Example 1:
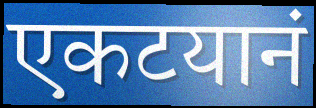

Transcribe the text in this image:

एकटयानं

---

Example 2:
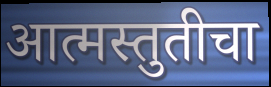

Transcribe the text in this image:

आत्मस्तुतीचा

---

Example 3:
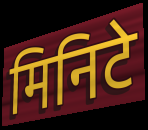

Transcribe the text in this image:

मिनिटे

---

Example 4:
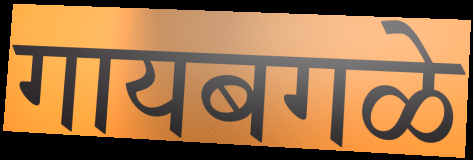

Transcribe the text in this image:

गायबगळे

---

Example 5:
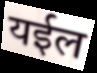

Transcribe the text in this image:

यईल